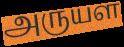
அருயள